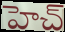
హెచ్